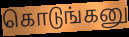
கொடுங்கனு